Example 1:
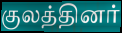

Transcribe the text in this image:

குலத்தினர்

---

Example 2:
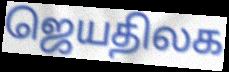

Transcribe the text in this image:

ஜெயதிலக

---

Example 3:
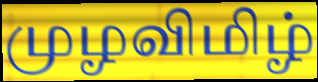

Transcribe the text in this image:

முழவிமிழ்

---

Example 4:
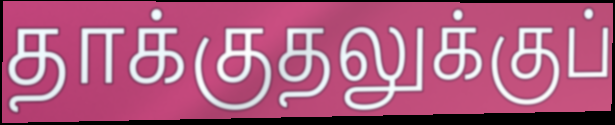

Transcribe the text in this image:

தாக்குதலுக்குப்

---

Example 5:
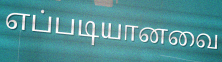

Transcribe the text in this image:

எப்படியானவை